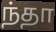
ந்தா